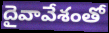
దైవావేశంతో